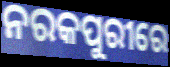
ନରକପୁରୀରେ